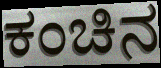
ಕಂಚಿನ